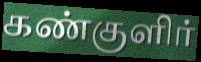
கண்குளிர்